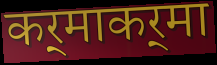
कर्माकर्मा